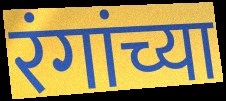
रंगांच्या